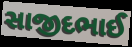
સાજીદભાઈ